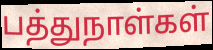
பத்துநாள்கள்